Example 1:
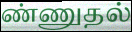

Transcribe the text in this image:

ண்ணுதல்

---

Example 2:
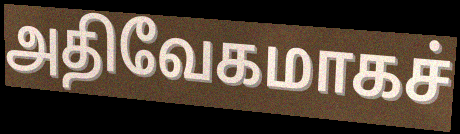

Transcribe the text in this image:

அதிவேகமாகச்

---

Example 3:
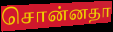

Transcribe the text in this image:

சொன்னதா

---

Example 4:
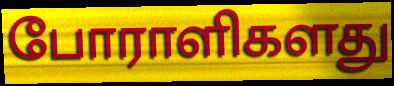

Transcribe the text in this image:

போராளிகளது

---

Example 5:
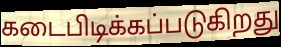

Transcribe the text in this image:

கடைபிடிக்கப்படுகிறது